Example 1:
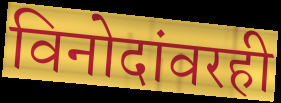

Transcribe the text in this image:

विनोदांवरही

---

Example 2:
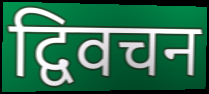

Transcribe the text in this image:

द्विवचन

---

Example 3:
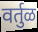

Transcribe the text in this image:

वर्तुळ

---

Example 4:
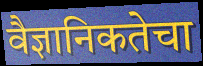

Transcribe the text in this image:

वैज्ञानिकतेचा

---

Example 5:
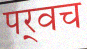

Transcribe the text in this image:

पर्वच